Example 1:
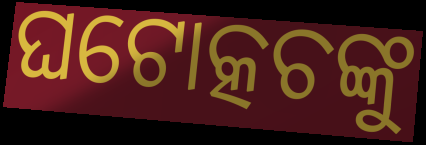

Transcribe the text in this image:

ଘଟୋତ୍କଚଙ୍କୁ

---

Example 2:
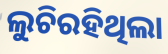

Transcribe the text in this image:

ଲୁଚିରହିଥିଲା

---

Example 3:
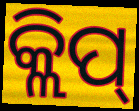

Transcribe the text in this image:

କ୍ଲିପ୍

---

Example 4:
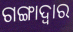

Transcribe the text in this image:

ଗଙ୍ଗାଦ୍ୱାର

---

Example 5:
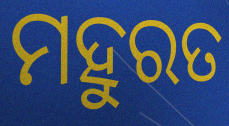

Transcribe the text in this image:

ମହୁରତ